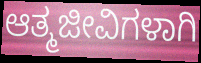
ಆತ್ಮಜೀವಿಗಳಾಗಿ